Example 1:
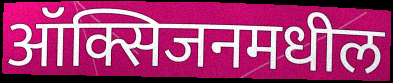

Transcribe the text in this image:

ऑक्सिजनमधील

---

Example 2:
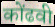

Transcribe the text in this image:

कोंढवी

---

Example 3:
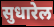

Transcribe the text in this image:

सुधारेल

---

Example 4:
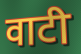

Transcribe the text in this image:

वाटी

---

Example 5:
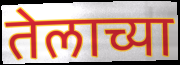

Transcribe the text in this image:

तेलाच्या